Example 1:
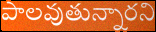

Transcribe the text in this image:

పాలవుతున్నారని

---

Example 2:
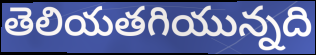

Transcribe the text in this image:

తెలియతగియున్నది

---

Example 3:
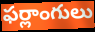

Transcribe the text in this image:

ఫర్లాంగులు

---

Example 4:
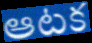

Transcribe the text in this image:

ఆటక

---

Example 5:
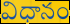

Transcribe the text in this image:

విధానం